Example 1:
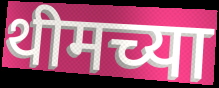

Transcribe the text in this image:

थीमच्या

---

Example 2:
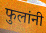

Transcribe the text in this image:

फुलांनी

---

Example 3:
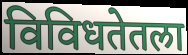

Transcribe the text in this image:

विविधतेतला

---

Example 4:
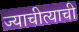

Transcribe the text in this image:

ज्याचीत्याची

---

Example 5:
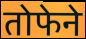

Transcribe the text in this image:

तोफेने